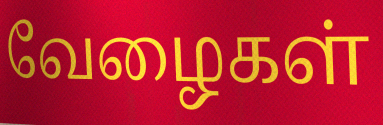
வேழைகள்